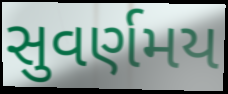
સુવર્ણમય